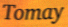
Tomay